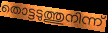
തൊട്ടടുത്തുനിന്ന്